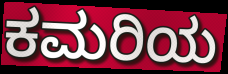
ಕಮರಿಯ